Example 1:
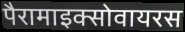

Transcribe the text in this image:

पैरामाइक्सोवायरस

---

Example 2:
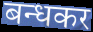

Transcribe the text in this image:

बन्धकर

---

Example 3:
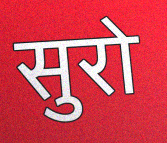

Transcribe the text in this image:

सुरो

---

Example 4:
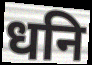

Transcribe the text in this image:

धनि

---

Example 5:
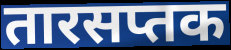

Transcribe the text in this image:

तारसप्तक